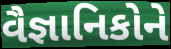
વૈજ્ઞાનિકોને